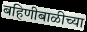
बहिणीबाळीच्या